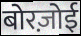
बोरज़ोई